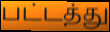
பட்டத்து